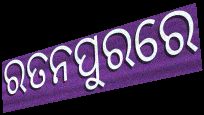
ରତନପୁରରେ